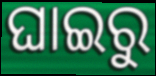
ଘାଇରୁ